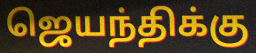
ஜெயந்திக்கு